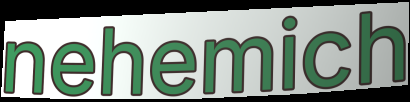
nehemich